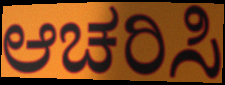
ಆಚರಿಸಿ